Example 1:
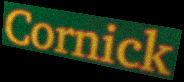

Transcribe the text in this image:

Cornick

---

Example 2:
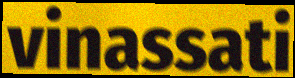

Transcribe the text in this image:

vinassati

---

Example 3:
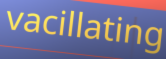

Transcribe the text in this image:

vacillating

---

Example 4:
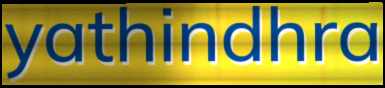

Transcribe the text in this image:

yathindhra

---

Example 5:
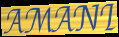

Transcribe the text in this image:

AMANI